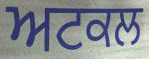
ਅਟਕਲ